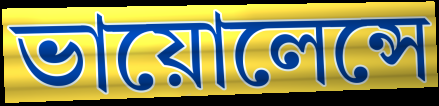
ভায়োলেন্সে